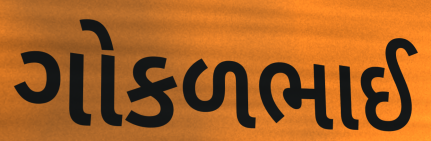
ગોકળભાઈ